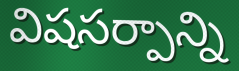
విషసర్పాన్ని